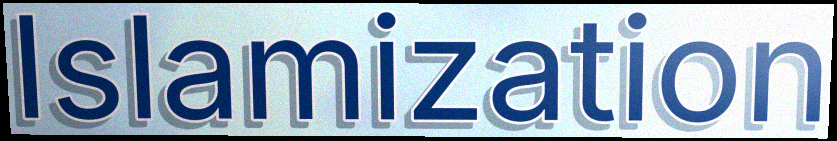
Islamization